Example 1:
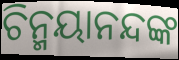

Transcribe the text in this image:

ଚିନ୍ମୟାନନ୍ଦଙ୍କ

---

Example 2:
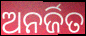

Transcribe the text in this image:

ଅନର୍ଜିତ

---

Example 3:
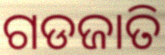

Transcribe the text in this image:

ଗଡଜାତି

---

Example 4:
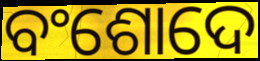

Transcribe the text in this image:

ବଂଶୋଦେ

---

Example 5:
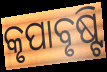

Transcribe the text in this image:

କୃପାବୃଷ୍ଟି